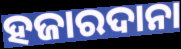
ହଜାରଦାନା